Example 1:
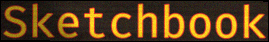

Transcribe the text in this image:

Sketchbook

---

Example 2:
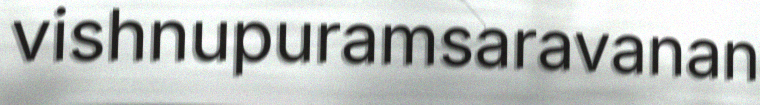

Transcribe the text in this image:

vishnupuramsaravanan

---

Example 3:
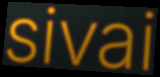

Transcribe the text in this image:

sivai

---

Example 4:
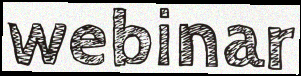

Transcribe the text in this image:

webinar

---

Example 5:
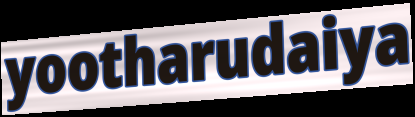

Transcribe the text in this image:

yootharudaiya